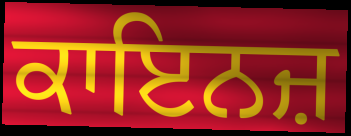
ਕਾਇਨਜ਼